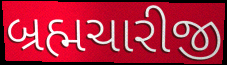
બ્રહ્મચારીજી